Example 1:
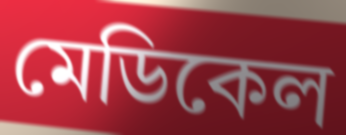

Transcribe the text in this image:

মেডিকেল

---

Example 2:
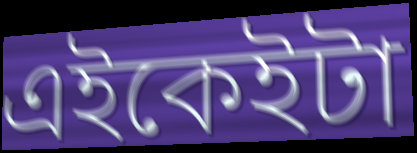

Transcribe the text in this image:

এইকেইটা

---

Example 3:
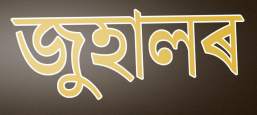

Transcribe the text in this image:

জুহালৰ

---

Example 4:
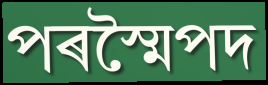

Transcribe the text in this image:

পৰস্মৈপদ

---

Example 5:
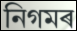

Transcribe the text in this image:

নিগমৰ